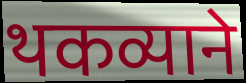
थकव्याने